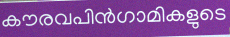
കൗരവപിൻഗാമികളുടെ